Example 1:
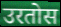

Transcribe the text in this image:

उरतोस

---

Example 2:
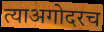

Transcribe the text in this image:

त्याअगोदरच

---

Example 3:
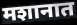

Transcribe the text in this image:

मशानात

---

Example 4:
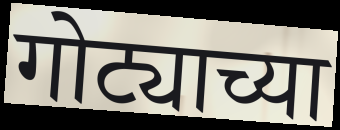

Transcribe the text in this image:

गोट्याच्या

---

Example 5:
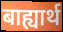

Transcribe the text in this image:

बाह्यार्थ